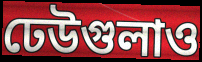
ঢেউগুলাও